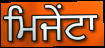
ਮਿਜੇਂਟਾ